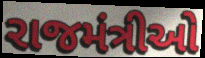
રાજમંત્રીઓ